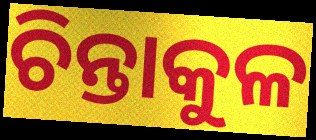
ଚିନ୍ତାକୁଳ